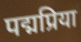
पद्मप्रिया